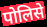
पोलिसे